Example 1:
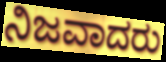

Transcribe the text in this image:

ನಿಜವಾದರು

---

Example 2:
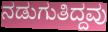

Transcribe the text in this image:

ನಡುಗುತಿದ್ದವು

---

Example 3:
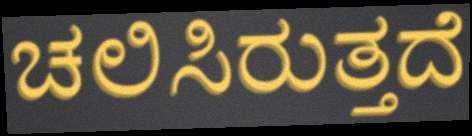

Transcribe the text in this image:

ಚಲಿಸಿರುತ್ತದೆ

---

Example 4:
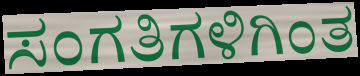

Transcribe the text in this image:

ಸಂಗತಿಗಳಿಗಿಂತ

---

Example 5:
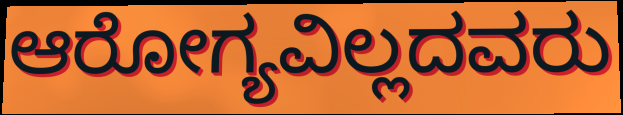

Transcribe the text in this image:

ಆರೋಗ್ಯವಿಲ್ಲದವರು